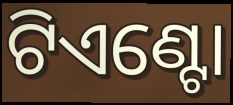
ଟିଏଣ୍ଟୋ